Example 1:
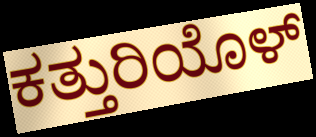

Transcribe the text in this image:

ಕತ್ತುರಿಯೊಳ್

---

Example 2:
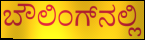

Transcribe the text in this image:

ಬೌಲಿಂಗ್‌ನಲ್ಲಿ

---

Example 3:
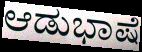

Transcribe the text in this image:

ಆಡುಭಾಷೆ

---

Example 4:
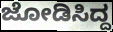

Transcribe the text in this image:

ಜೋಡಿಸಿದ್ದ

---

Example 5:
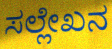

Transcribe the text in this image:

ಸಲ್ಲೇಖನ